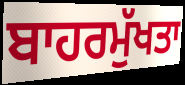
ਬਾਹਰਮੁੱਖਤਾ